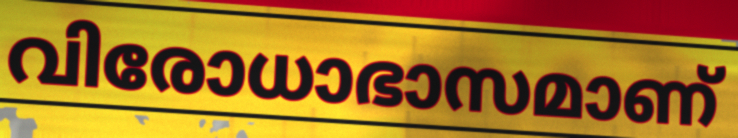
വിരോധാഭാസമാണ്